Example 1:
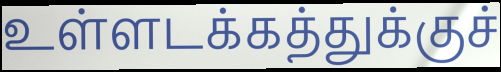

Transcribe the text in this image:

உள்ளடக்கத்துக்குச்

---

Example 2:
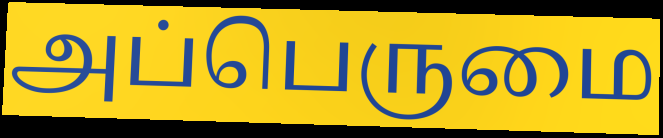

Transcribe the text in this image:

அப்பெருமை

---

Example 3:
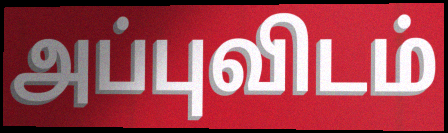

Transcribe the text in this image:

அப்புவிடம்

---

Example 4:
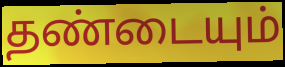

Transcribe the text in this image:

தண்டையும்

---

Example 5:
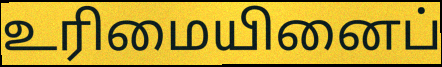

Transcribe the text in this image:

உரிமையினைப்